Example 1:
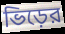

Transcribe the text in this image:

ভিড়ের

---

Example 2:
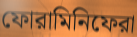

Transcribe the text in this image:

ফোরামিনিফেরা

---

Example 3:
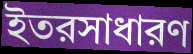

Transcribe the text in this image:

ইতরসাধারণ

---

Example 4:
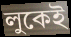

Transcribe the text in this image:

লুকেই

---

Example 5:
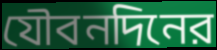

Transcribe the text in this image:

যৌবনদিনের